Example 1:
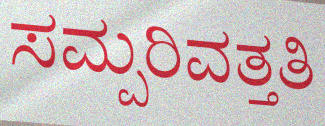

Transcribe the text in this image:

ಸಮ್ಪರಿವತ್ತತಿ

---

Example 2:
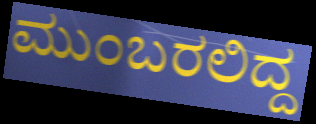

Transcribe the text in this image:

ಮುಂಬರಲಿದ್ದ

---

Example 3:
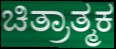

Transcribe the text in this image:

ಚಿತ್ರಾತ್ಮಕ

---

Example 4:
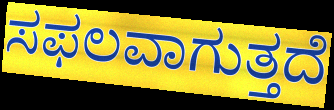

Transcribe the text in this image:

ಸಫಲವಾಗುತ್ತದೆ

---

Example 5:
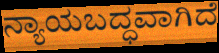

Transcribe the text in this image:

ನ್ಯಾಯಬದ್ಧವಾಗಿದೆ